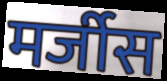
मर्जीस